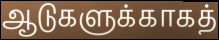
ஆடுகளுக்காகத்